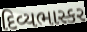
દિવ્યભાસ્કર